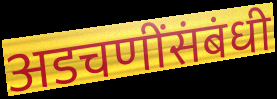
अडचणींसंबंधी